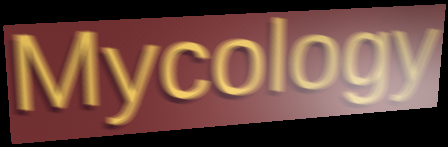
Mycology